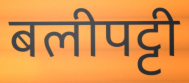
बलीपट्टी